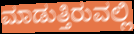
ಮಾಡುತ್ತಿರುವಲ್ಲಿ